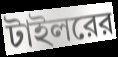
টাইলরের